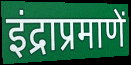
इंद्राप्रमाणें